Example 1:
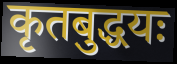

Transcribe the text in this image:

कृतबुद्धयः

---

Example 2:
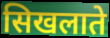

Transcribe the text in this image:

सिखलाते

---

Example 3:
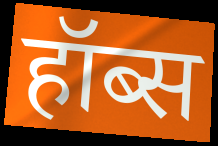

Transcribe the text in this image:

हॉब्स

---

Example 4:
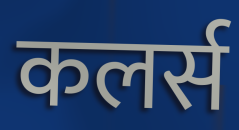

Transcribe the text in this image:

कलर्स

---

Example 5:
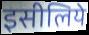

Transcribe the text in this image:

इसीलिये